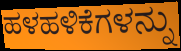
ಹಳಹಳಿಕೆಗಳನ್ನು